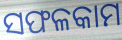
ସଫଳକାମ